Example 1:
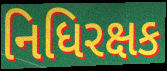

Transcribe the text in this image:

નિધિરક્ષક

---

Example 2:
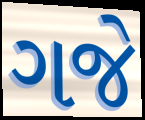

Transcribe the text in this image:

ગજે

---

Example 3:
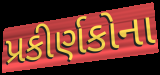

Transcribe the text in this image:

પ્રકીર્ણકોના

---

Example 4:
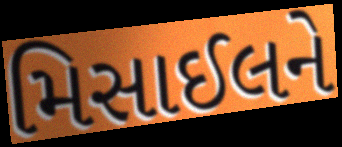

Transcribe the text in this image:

મિસાઈલને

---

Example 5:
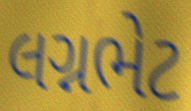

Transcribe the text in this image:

લગ્નભેટ